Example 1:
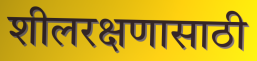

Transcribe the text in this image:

शीलरक्षणासाठी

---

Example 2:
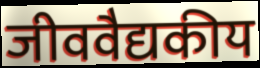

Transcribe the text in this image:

जीववैद्यकीय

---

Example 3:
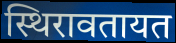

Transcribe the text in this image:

स्थिरावतायत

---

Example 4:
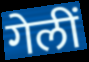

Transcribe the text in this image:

गेलीं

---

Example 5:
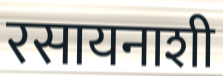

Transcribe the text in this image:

रसायनाशी